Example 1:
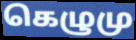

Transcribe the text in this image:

கெழுமு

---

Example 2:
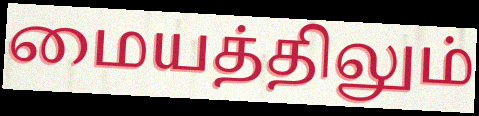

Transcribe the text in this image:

மையத்திலும்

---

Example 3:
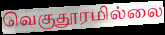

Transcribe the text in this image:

வெகுதூரமில்லை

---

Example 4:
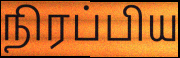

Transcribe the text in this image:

நிரப்பிய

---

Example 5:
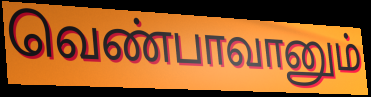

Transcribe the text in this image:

வெண்பாவானும்